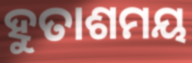
ହୁତାଶମୟ